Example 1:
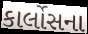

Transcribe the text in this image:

કાર્લોસના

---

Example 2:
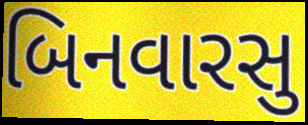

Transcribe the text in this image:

બિનવારસુ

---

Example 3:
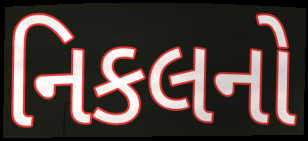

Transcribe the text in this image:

નિકલનો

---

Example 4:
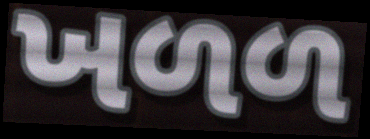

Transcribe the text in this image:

ખળળ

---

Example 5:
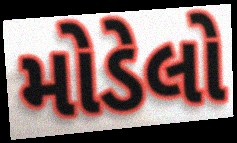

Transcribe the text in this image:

મોડેલો